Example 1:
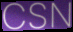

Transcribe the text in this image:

CSN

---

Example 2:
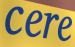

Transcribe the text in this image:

cere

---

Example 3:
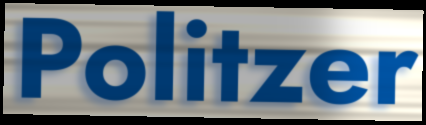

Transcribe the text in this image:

Politzer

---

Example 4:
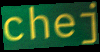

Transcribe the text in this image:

chej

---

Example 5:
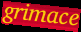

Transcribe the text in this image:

grimace